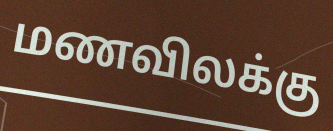
மணவிலக்கு